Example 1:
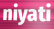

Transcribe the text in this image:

niyati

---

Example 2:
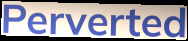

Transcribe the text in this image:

Perverted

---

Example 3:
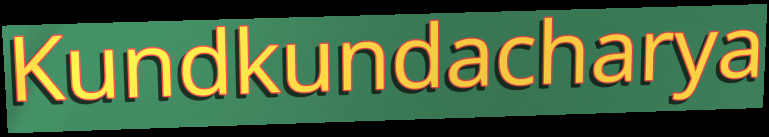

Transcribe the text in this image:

Kundkundacharya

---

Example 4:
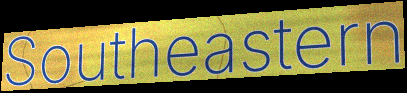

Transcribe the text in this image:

Southeastern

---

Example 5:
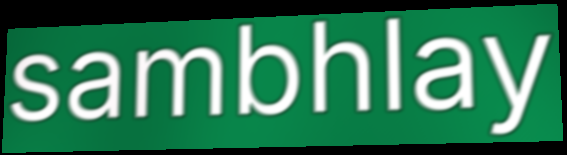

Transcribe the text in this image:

sambhlay